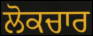
ਲੋਕਚਾਰ